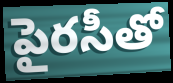
పైరసీతో